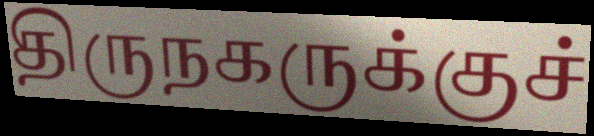
திருநகருக்குச்